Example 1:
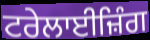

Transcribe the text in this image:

ਟਰੇਲਾਈਜ਼ਿੰਗ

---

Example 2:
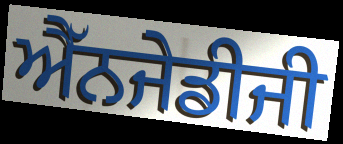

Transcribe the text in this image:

ਐੱਨਜੇਡੀਜੀ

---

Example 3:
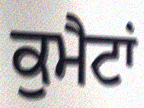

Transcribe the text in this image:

ਕੁਮੈਟਾਂ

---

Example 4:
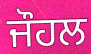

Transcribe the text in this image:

ਜੌਹਲ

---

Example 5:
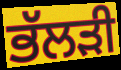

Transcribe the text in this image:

ਭੱਲੜੀ